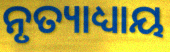
ନୃତ୍ୟାଧ୍ୟାୟ